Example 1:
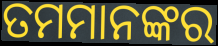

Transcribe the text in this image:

ତମମାନଙ୍କର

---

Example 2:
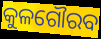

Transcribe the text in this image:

କୁଳଗୌରବ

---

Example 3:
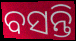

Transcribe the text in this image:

ବସନ୍ତି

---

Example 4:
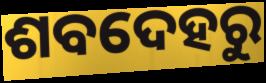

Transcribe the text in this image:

ଶବଦେହରୁ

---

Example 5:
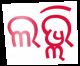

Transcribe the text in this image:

ଲଭ୍ଲି